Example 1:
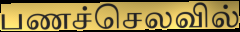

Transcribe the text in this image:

பணச்செலவில்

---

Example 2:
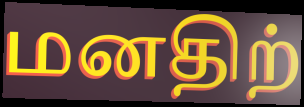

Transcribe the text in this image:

மனதிற்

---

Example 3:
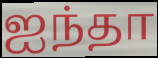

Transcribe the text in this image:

ஐந்தா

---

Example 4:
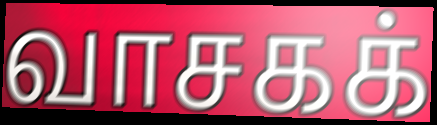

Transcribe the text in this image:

வாசகக்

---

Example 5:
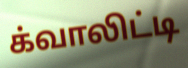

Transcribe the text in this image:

க்வாலிட்டி